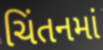
ચિંતનમાં